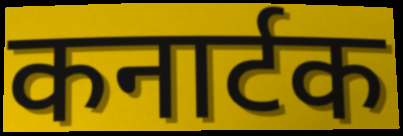
कनार्टक